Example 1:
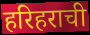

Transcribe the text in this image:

हरिहराची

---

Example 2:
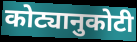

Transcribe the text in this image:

कोट्यानुकोटी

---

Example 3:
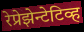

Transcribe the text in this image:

रेप्रेझेन्टेटिव्ह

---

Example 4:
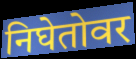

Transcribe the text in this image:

निघेतोवर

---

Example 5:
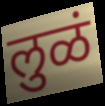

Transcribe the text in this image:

लुळं